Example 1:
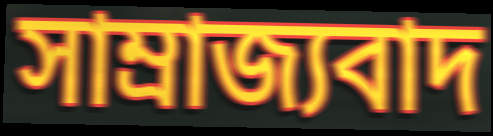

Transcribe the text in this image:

সাম্রাজ্যবাদ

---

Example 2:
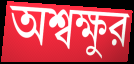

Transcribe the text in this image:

অশ্বক্ষুর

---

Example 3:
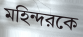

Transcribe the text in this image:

মহিন্দরকে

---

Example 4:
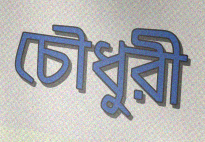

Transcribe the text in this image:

চৌধুরী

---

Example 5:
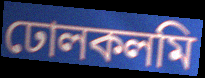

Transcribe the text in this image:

ঢোলকলমি